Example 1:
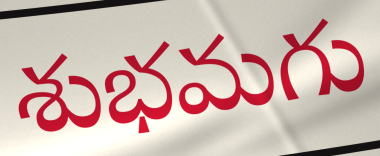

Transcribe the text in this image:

శుభమగు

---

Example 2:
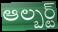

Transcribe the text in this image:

ఆల్బర్ట్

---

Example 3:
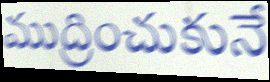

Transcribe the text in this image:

ముద్రించుకునే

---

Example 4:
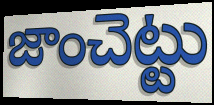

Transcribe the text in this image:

జాంచెట్టు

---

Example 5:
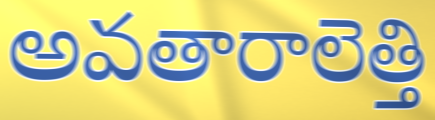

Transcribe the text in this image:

అవతారాలెత్తి